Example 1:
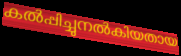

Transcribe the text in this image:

കൽപ്പിച്ചുനൽകിയതായ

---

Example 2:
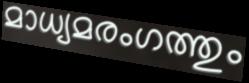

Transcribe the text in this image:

മാധ്യമരംഗത്തും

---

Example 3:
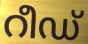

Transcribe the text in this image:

റീഡ്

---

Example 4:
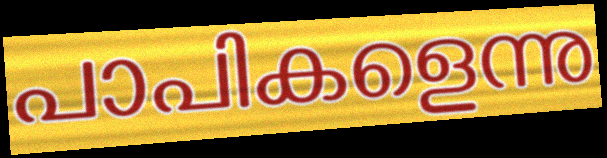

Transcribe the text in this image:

പാപികളെന്നു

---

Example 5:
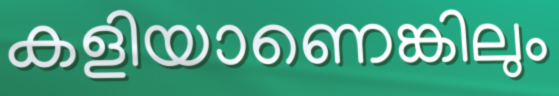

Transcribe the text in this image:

കളിയാണെങ്കിലും